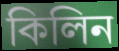
কিলিন